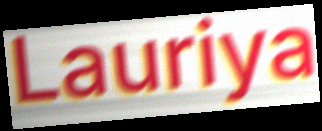
Lauriya